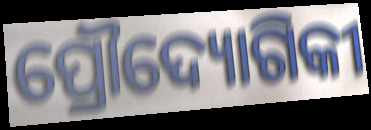
ପ୍ରୌଦ୍ୟୋଗିକୀ